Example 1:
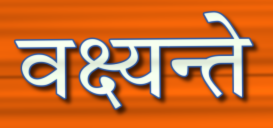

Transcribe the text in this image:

वक्ष्यन्ते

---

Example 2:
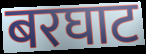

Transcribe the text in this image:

बरघाट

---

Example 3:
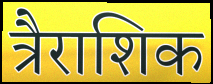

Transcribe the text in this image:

त्रैराशिक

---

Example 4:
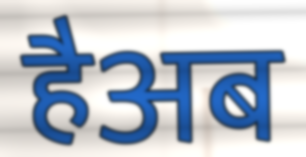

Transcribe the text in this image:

हैअब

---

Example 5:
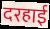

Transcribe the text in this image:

दरहाई